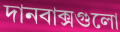
দানবাক্সগুলো